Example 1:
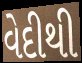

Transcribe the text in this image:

વેદીથી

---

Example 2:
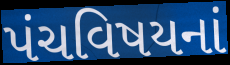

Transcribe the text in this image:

પંચવિષયનાં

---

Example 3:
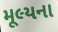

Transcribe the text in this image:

મૂલ્યના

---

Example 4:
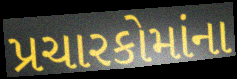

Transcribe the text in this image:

પ્રચારકોમાંના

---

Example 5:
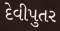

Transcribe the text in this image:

દેવીપુતર